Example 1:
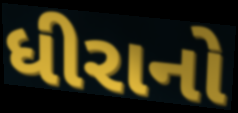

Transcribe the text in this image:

ધીરાનો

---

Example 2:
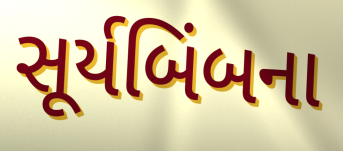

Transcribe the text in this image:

સૂર્યબિંબના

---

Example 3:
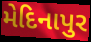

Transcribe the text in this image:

મેદિનાપુર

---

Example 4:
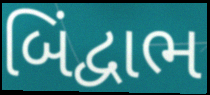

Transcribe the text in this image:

બિંદ્વાભ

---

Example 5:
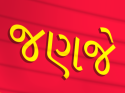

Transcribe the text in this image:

જણજે